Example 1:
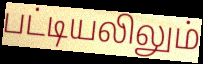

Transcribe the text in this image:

பட்டியலிலும்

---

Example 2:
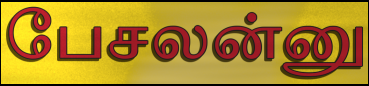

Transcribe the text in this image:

பேசலன்னு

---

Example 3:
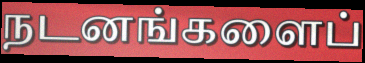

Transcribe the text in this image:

நடனங்களைப்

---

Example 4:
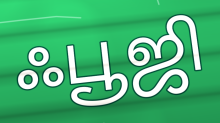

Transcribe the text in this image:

ஃபூஜி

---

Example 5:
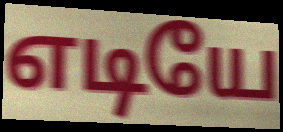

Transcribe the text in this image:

எடியே